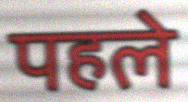
पहले